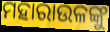
ମହାରାଉଳଙ୍କୁ